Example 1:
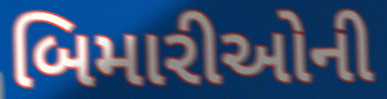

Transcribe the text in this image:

બિમારીઓની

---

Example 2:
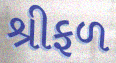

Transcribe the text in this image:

શ્રીફળ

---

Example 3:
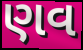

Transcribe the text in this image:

ણવ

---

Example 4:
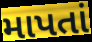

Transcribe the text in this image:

માપતાં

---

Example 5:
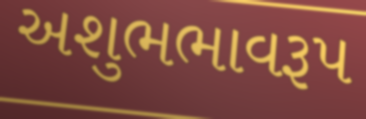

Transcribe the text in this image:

અશુભભાવરૂપ